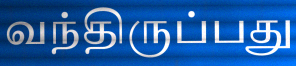
வந்திருப்பது